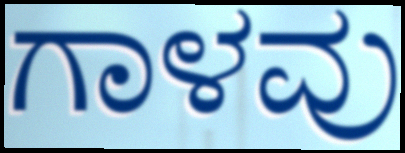
ಗಾಳವು